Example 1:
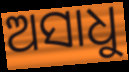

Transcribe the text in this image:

ଅସାଧୁ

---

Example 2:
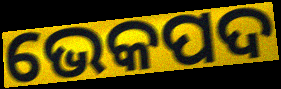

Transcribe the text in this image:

ଭେକପଦ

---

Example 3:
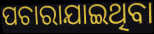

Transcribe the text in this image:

ପଚାରାଯାଇଥିବା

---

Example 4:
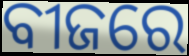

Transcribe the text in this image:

ବୀଜରେ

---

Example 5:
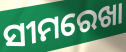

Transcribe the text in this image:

ସୀମରେଖା